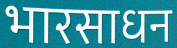
भारसाधन